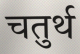
चतुर्थ